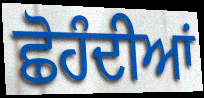
ਛੋਹੰਦੀਆਂ